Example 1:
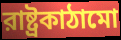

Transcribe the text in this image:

রাষ্ট্রকাঠামো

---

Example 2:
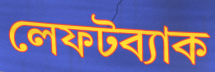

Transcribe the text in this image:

লেফটব্যাক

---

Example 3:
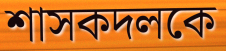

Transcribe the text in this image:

শাসকদলকে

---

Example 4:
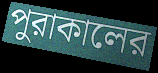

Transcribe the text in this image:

পুরাকালের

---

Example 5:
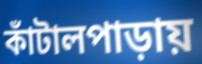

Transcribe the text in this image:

কাঁটালপাড়ায়